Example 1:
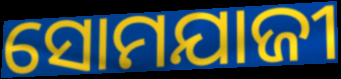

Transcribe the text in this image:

ସୋମଯାଜୀ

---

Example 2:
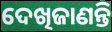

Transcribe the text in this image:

ଦେଖିଜାଣନ୍ତି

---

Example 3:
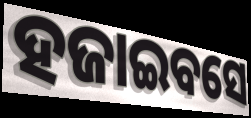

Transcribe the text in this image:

ହଜାଇବସେ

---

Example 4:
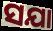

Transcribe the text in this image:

ସଯା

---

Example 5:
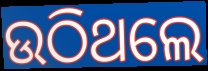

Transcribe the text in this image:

ଉଠିଥଲେ